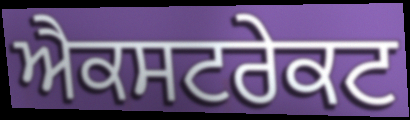
ਐਕਸਟਰੇਕਟ